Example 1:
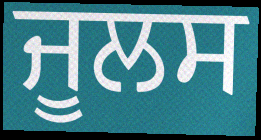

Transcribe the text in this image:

ਜੂਲਸ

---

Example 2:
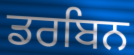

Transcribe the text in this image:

ਡਰਬਿਨ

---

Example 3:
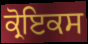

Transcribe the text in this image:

ਕ੍ਰੋਇਕਸ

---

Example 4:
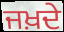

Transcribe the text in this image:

ਜਖ਼ਦੇ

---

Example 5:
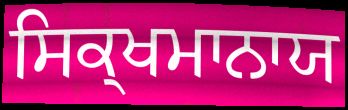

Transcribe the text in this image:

ਸਿਕ੍ਖਮਾਨਾਯ